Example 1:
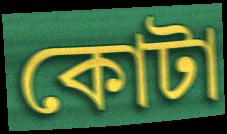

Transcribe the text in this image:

কোটা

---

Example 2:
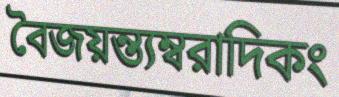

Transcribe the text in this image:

বৈজয়ন্ত্যম্বরাদিকং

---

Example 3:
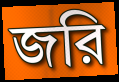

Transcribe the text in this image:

জরি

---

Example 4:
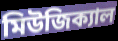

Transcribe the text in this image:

মিউজিক্যাল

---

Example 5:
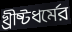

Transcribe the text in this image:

খ্রীষ্টধর্মের